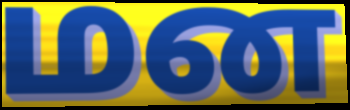
மன